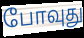
போவுது